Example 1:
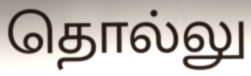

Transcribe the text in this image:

தொல்லு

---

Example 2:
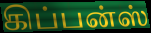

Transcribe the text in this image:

கிப்பன்ஸ்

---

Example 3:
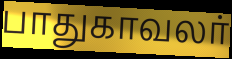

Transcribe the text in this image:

பாதுகாவலர்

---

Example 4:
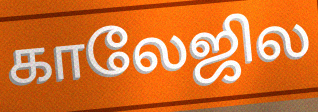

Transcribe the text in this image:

காலேஜில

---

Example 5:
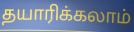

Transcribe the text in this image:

தயாரிக்கலாம்